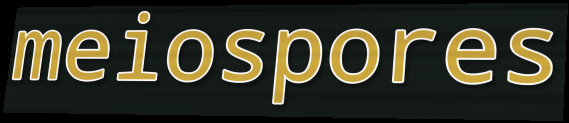
meiospores